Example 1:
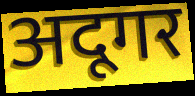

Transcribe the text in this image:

अदूगर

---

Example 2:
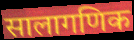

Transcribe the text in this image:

सालागणिक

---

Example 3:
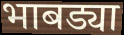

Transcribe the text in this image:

भाबड्या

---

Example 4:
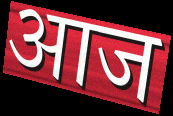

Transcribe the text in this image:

आज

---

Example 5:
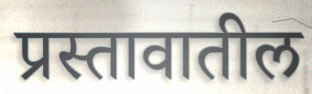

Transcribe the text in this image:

प्रस्तावातील